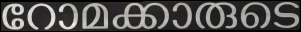
റോമക്കാരുടെ